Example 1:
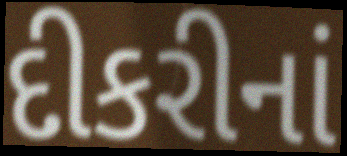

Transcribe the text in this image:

દીકરીનાં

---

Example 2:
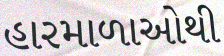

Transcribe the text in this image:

હારમાળાઓથી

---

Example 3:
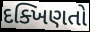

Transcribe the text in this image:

દક્ખિણતો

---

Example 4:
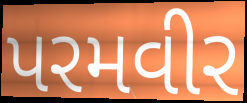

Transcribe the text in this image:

પરમવીર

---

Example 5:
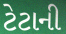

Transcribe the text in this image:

ટેટાની